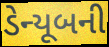
ડેન્યૂબની